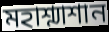
মহাশ্মাশান